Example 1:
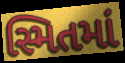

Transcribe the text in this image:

સ્મિતમાં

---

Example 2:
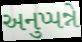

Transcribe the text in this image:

અનુપ્પન્ને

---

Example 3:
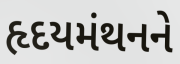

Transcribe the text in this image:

હૃદયમંથનને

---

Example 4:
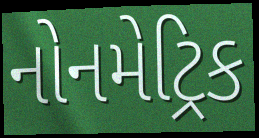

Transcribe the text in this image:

નોનમેટ્રિક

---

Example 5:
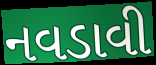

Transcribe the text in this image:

નવડાવી